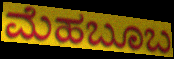
ಮೆಹಬೂಬ